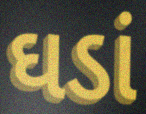
ઘડાં